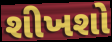
શીખશો